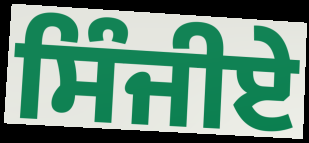
ਸਿੰਜੀਏ